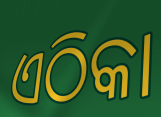
ଏଠିକା